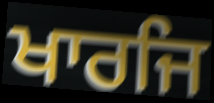
ਖਾਰਜਿ